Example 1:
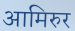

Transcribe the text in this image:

आमिरुर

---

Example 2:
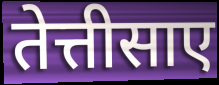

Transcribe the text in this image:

तेत्तीसाए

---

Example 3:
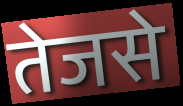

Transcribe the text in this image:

तेजसे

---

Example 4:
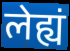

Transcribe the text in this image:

लेह्यं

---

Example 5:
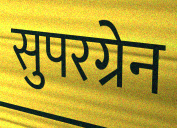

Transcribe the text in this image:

सुपरग्रेन